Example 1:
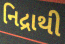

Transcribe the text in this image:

નિદ્રાથી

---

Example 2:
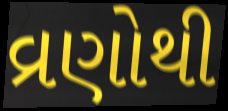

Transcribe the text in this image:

વ્રણોથી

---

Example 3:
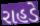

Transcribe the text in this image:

રાહડે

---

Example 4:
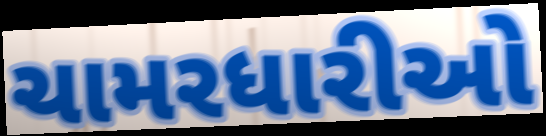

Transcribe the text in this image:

ચામરધારીઓ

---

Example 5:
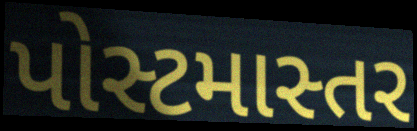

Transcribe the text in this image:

પોસ્ટમાસ્તર